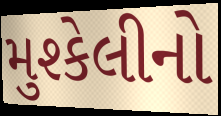
મુશ્કેલીનો